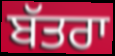
ਬੱਤਰਾ